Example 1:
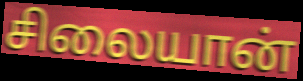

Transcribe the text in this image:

சிலையான்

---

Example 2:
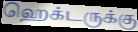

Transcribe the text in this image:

ஹெக்டருக்கு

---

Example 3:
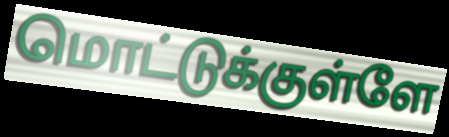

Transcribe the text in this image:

மொட்டுக்குள்ளே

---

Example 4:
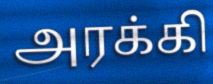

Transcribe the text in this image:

அரக்கி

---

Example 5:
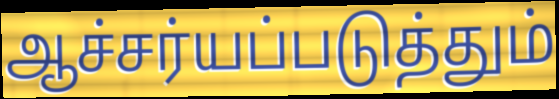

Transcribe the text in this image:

ஆச்சர்யப்படுத்தும்